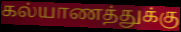
கல்யாணத்துக்கு